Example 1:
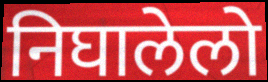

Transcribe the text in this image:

निघालेलो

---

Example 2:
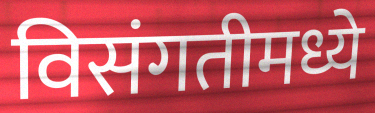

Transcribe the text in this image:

विसंगतीमध्ये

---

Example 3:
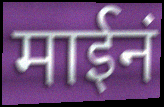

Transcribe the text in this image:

माईनं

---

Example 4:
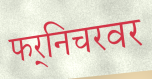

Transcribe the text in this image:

फर्निचरवर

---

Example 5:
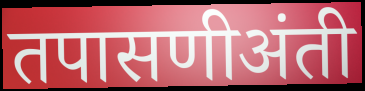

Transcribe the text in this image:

तपासणीअंती